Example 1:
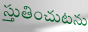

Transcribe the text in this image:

స్తుతించుటను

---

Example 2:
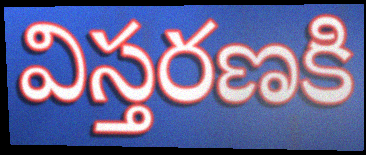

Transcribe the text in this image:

విస్తరణకి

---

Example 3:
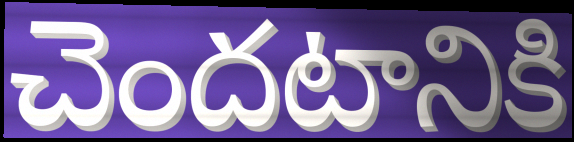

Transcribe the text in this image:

చెందటానికి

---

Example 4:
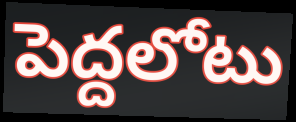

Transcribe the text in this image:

పెద్దలోటు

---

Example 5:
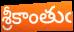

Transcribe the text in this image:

శ్రీకాంతుఁ